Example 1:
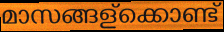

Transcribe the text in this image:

മാസങ്ങള്ക്കൊണ്ട്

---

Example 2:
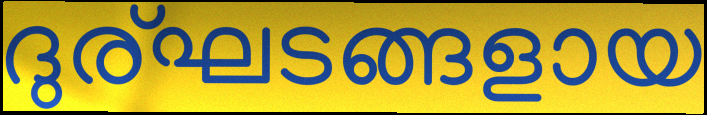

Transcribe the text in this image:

ദുര്ഘടങ്ങളായ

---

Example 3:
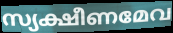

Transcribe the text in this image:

സ്യക്ഷീണമേവ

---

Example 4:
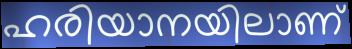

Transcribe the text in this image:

ഹരിയാനയിലാണ്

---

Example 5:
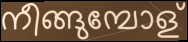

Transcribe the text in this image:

നീങ്ങുമ്പോള്